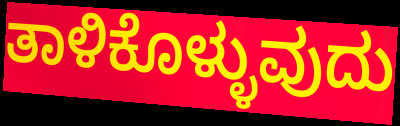
ತಾಳಿಕೊಳ್ಳುವುದು